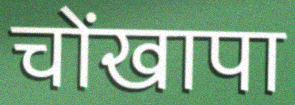
चोंखापा